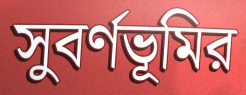
সুবর্ণভূমির